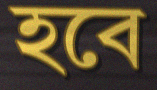
হবে